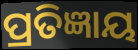
ପ୍ରତିଜ୍ଞାୟ